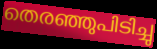
തെരഞ്ഞുപിടിച്ചു